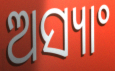
ଅସ୍ୟାଂ